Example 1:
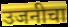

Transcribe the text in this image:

उजनीचा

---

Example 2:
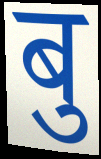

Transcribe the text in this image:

बु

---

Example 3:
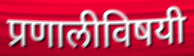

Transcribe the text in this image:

प्रणालीविषयी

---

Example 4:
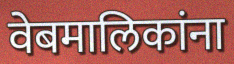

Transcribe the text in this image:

वेबमालिकांना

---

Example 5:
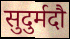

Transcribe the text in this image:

सुदुर्मदौ